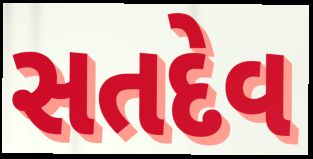
સતદેવ